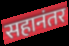
सहानंतर